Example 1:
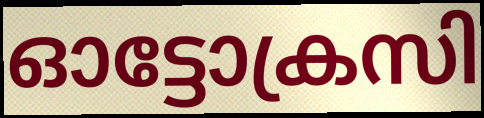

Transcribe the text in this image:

ഓട്ടോക്രസി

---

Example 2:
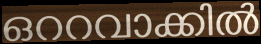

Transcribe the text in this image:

ഒററവാക്കിൽ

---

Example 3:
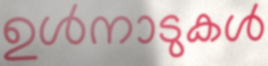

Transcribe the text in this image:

ഉൾനാടുകൾ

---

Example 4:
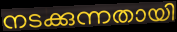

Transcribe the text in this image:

നടക്കുന്നതായി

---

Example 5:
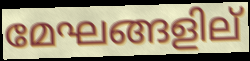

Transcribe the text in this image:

മേഘങ്ങളില്